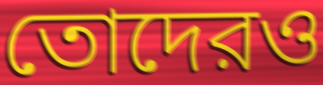
তোদেরও